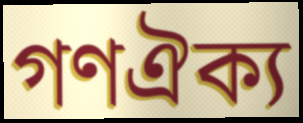
গণঐক্য